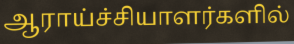
ஆராய்ச்சியாளர்களில்